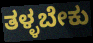
ತಳ್ಳಬೇಕು